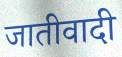
जातीवादी